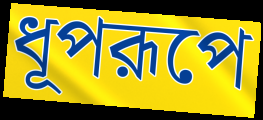
ধূপরূপে